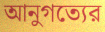
আনুগত্যের